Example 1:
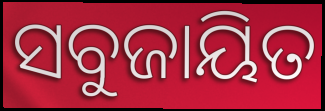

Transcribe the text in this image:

ସବୁଜାୟିତ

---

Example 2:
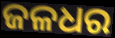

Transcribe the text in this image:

ଜଳଧର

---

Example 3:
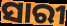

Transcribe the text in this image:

ସାରୀ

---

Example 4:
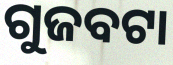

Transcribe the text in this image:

ଗୁଜବଟା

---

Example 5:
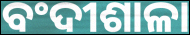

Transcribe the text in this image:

ବଂଦୀଶାଳା